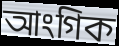
আংগিক